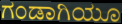
ಗಂಡಾಗಿಯೂ